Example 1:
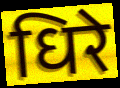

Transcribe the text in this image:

धिरे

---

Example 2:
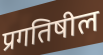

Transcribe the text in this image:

प्रगतिषील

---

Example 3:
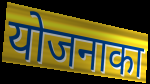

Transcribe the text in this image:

योजनाका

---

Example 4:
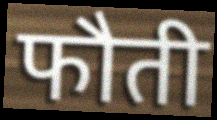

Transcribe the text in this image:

फौती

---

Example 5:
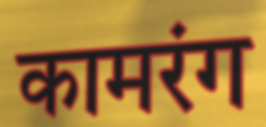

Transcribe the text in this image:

कामरंग